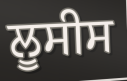
ਲੂਸੀਸ